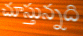
చూస్తున్నది